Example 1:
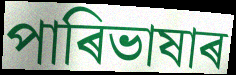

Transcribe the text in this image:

পাৰিভাষাৰ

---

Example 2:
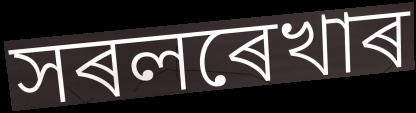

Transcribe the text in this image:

সৰলৰেখাৰ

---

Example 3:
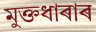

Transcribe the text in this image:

মুক্তধাৰাৰ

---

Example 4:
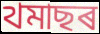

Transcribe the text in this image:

থমাছৰ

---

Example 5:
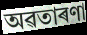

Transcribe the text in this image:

অৱতাৰণা